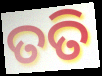
ତତି